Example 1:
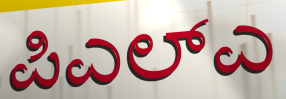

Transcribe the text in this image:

ಪಿಎಲ್ಎ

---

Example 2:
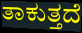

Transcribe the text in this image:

ತಾಕುತ್ತದೆ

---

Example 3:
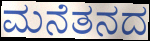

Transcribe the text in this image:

ಮನೆತನದ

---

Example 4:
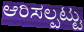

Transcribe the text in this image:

ಆರಿಸಲ್ಪಟ್ಟು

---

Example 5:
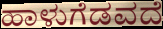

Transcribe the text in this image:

ಹಾಳುಗೆಡವದೆ